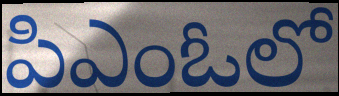
పిఎంఓలో